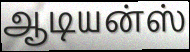
ஆடியன்ஸ்